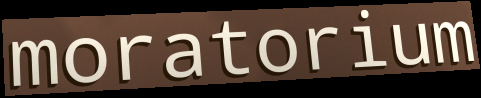
moratorium